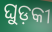
ଘୁଡ଼କୀ